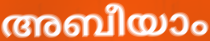
അബീയാം